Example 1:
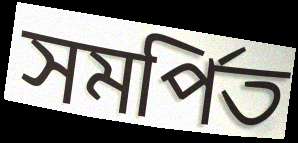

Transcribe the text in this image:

সমর্পিত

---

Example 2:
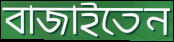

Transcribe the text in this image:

বাজাইতেন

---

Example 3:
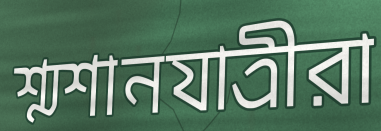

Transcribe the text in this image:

শ্মশানযাত্রীরা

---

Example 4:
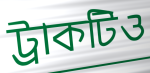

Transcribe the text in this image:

ট্রাকটিও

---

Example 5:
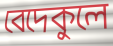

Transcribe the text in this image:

বেদেকুলে